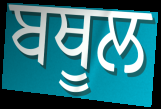
ਬਥੂਲ